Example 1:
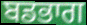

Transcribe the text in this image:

ਬਡਭਾਗ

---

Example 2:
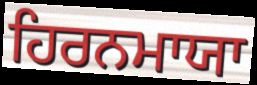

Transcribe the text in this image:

ਹਿਰਨਮਾਯਾ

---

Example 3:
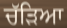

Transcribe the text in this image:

ਚੱੜਿਆ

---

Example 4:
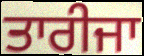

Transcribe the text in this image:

ਤਾਰੀਜਾ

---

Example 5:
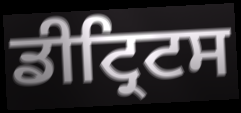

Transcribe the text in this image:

ਡੀਟ੍ਰਿਟਸ